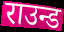
राउन्ड